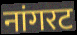
नांगरट